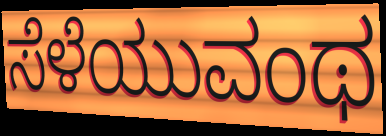
ಸೆಳೆಯುವಂಥ